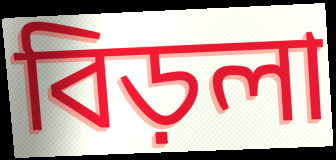
বিড়লা